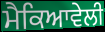
ਮੈਕਿਆਵੇਲੀ